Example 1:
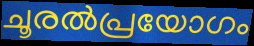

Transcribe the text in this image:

ചൂരൽപ്രയോഗം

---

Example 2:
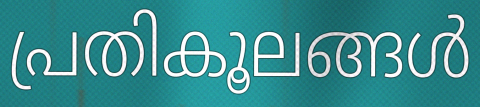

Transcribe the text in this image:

പ്രതികൂലങ്ങൾ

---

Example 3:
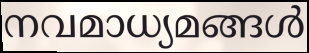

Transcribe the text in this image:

നവമാധ്യമങ്ങൾ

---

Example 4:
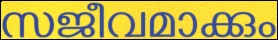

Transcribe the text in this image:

സജീവമാക്കും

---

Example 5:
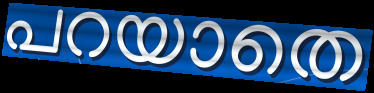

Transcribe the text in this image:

പറയാതെ